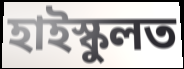
হাইস্কুলত